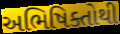
અભિષિક્તોથી